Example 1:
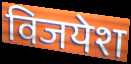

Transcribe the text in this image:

विजयेश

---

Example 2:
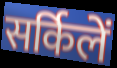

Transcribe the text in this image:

सर्किलें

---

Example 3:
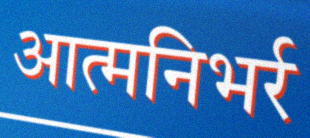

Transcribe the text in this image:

आत्मनिभर्र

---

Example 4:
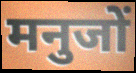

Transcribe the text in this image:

मनुजों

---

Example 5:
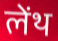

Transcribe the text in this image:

लेंथ